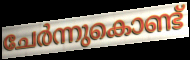
ചേർന്നുകൊണ്ട്